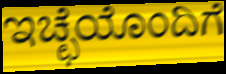
ಇಚ್ಛೆಯೊಂದಿಗೆ